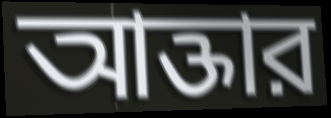
আক্তার